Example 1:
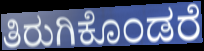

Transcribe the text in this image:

ತಿರುಗಿಕೊಂಡರೆ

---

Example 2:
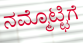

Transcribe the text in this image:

ನಮ್ಮೊಟ್ಟಿಗೆ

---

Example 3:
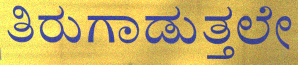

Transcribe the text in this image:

ತಿರುಗಾಡುತ್ತಲೇ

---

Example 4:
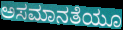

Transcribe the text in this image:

ಅಸಮಾನತೆಯೂ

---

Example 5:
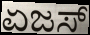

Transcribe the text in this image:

ಏಜಸ್